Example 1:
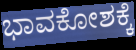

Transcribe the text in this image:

ಭಾವಕೋಶಕ್ಕೆ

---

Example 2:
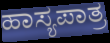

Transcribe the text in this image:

ಹಾಸ್ಯಪಾತ್ರ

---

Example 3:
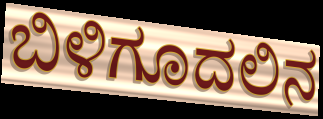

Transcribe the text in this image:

ಬಿಳಿಗೂದಲಿನ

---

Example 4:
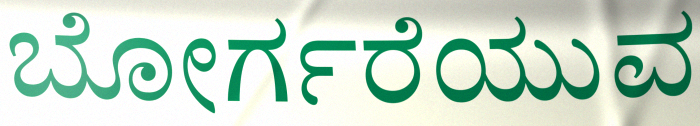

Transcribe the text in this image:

ಬೋರ್ಗರೆಯುವ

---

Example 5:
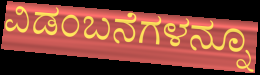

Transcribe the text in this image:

ವಿಡಂಬನೆಗಳನ್ನೂ